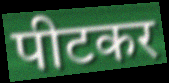
पीटकर